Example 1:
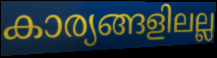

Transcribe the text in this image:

കാര്യങ്ങളിലല്ല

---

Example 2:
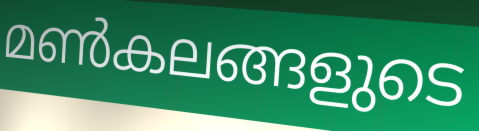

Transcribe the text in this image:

മൺകലങ്ങളുടെ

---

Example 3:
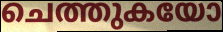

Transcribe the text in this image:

ചെത്തുകയോ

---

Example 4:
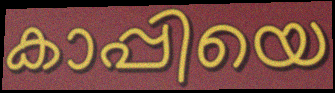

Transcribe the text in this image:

കാപ്പിയെ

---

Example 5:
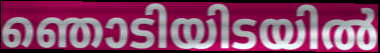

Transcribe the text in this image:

ഞൊടിയിടയിൽ